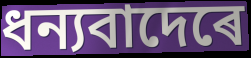
ধন্যবাদেৰে